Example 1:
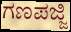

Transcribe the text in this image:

ಗಣಪಜ್ಜಿ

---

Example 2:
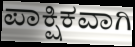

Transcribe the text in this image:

ಪಾಕ್ಷಿಕವಾಗಿ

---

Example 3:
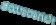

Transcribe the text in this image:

ತಯಾರಾಗಲೇ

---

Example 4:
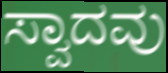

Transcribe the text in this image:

ಸ್ವಾದವು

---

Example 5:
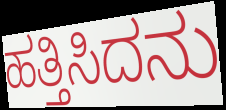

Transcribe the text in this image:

ಹತ್ತಿಸಿದನು